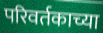
परिवर्तकाच्या